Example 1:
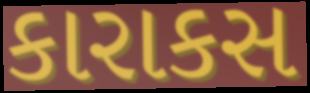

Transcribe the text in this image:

કારાકસ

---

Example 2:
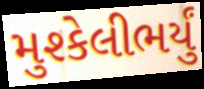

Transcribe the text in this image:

મુશ્કેલીભર્યું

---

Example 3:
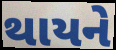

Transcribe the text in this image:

થાયને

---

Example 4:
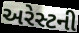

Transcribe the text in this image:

અરેસ્ટની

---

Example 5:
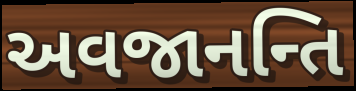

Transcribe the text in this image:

અવજાનન્તિ